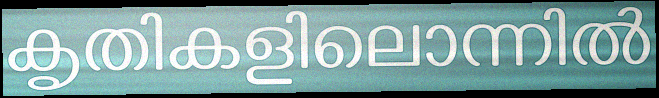
കൃതികളിലൊന്നിൽ